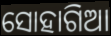
ସୋହାଗିଆ